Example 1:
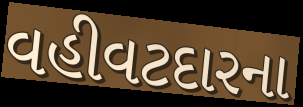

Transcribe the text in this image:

વહીવટદારના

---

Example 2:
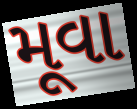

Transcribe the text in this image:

મૂવા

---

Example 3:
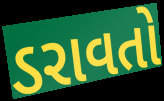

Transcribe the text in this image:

ડરાવતો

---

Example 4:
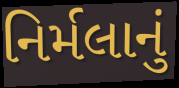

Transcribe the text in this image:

નિર્મલાનું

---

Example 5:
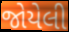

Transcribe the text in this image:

જોયેલી